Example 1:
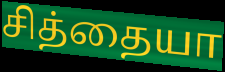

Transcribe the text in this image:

சித்தையா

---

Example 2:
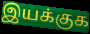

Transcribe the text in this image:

இயக்குக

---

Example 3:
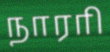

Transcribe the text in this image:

நாரரி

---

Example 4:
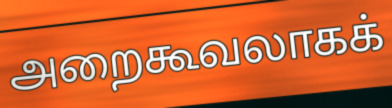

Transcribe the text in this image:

அறைகூவலாகக்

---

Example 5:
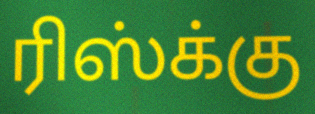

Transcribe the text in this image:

ரிஸ்க்கு